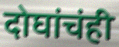
दोघांचंही